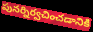
పునర్నిర్వచించడానికి